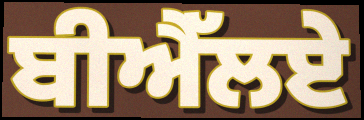
ਬੀਐੱਲਏ